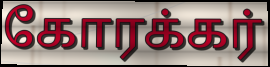
கோரக்கர்